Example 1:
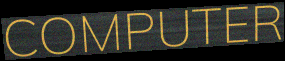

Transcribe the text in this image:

COMPUTER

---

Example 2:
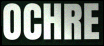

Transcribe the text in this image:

OCHRE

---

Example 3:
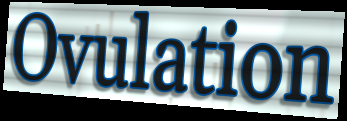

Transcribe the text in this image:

Ovulation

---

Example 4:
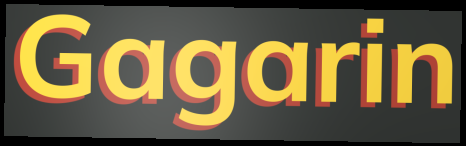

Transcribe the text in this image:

Gagarin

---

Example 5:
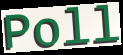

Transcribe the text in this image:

Poll